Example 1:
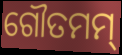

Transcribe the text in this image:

ଗୌତମମ୍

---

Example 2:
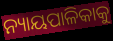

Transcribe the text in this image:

ନ୍ୟାୟପାଳିକାକୁ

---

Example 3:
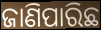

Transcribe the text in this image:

ଜାଣିପାରିଛ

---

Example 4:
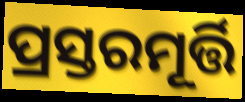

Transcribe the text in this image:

ପ୍ରସ୍ତରମୂର୍ତ୍ତି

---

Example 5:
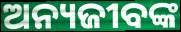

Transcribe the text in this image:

ଅନ୍ୟଜୀବଙ୍କ